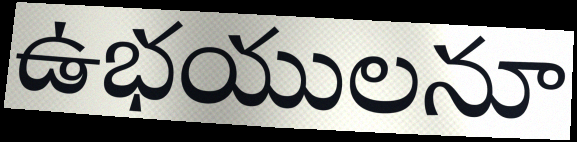
ఉభయులనూ